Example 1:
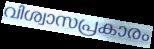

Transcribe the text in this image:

വിശ്വാസപ്രകാരം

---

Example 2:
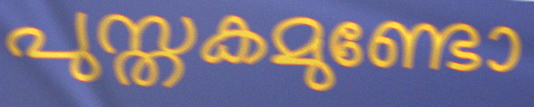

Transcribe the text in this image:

പുസ്തകമുണ്ടോ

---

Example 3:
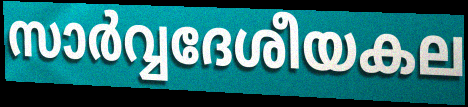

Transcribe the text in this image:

സാർവ്വദേശീയകല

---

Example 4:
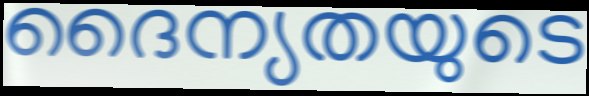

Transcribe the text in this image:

ദൈന്യതയുടെ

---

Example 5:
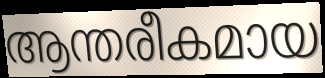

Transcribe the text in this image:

ആന്തരീകമായ